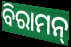
ବିରାମନ୍